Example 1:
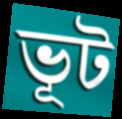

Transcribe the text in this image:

ভূট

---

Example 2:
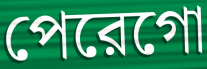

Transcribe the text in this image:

পেরেগো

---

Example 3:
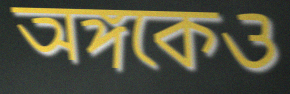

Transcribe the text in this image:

অঙ্গকেও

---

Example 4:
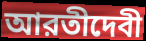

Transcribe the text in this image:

আরতীদেবী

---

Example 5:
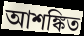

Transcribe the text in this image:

আশঙ্কিত